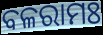
ବଳରାମଃ